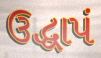
ઉદ્ધાપં